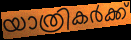
യാത്രികർക്ക്